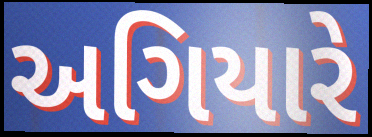
અગિયારે